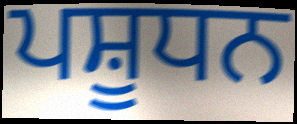
ਪਸ਼ੂਧਨ